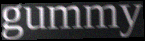
gummy